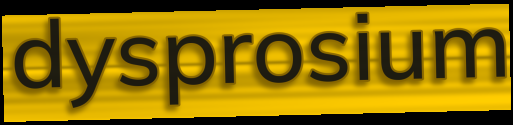
dysprosium